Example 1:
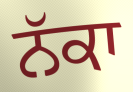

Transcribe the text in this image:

ਨੱਕਾ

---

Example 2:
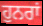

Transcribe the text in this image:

ਹੁਨਰਾਂ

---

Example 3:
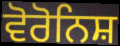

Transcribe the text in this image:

ਵੋਰੋਨਿਸ਼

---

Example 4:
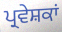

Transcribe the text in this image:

ਪ੍ਰਵੇਸ਼ਕਾਂ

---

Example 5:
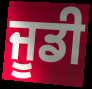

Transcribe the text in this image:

ਜੂਡੀ